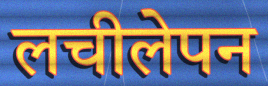
लचीलेपन